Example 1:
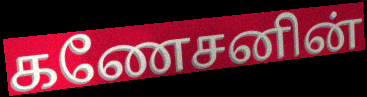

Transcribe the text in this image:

கணேசனின்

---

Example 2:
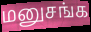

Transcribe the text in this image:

மனுசங்க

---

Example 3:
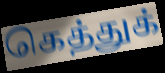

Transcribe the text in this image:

கெத்துக்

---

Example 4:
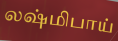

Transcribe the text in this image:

லஷ்மிபாய்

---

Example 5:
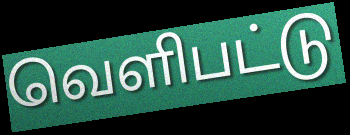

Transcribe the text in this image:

வெளிபட்டு